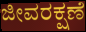
ಜೀವರಕ್ಷಣೆ